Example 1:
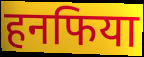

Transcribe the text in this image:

हनफिया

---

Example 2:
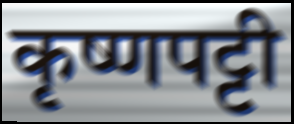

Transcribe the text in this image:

कृष्णपट्टी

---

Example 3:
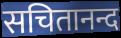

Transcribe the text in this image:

सचितानन्द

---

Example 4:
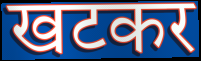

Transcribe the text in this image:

खटकर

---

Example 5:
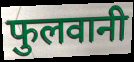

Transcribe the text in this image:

फुलवानी